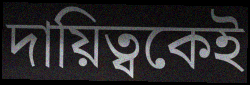
দায়িত্বকেই